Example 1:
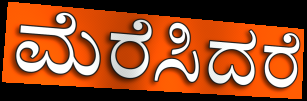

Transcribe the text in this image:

ಮೆರೆಸಿದರೆ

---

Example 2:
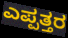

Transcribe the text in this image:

ಎಪ್ಪತ್ತರ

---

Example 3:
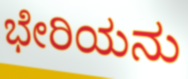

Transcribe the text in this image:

ಭೇರಿಯನು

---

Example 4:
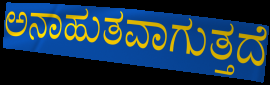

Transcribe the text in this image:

ಅನಾಹುತವಾಗುತ್ತದೆ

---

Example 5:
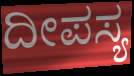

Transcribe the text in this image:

ದೀಪಸ್ಯ